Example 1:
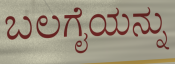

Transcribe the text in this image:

ಬಲಗೈಯನ್ನು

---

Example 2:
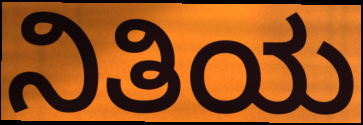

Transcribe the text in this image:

ನಿತಿಯ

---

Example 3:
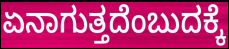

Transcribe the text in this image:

ಏನಾಗುತ್ತದೆಂಬುದಕ್ಕೆ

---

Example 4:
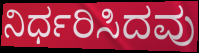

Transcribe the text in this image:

ನಿರ್ಧರಿಸಿದವು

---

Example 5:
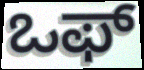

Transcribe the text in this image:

ಒಫ್